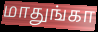
மாதுங்கா